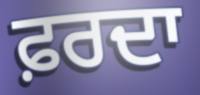
ਫ਼ਰਦਾ